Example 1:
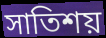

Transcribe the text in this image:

সাতিশয়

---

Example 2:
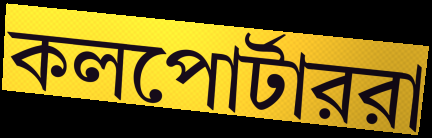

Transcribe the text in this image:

কলপোর্টাররা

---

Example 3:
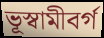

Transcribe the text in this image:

ভূস্বামীবর্গ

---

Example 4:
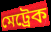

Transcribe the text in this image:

মেট্রেক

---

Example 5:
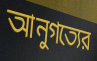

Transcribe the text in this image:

আনুগত্যের